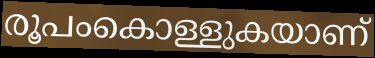
രൂപംകൊള്ളുകയാണ്